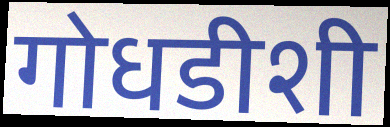
गोधडीशी